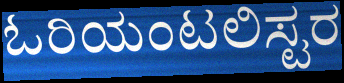
ಓರಿಯಂಟಲಿಸ್ಟರ